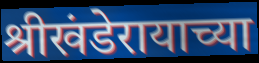
श्रीखंडेरायाच्या